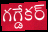
గగ్డేకర్